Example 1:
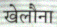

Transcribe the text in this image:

खेलौना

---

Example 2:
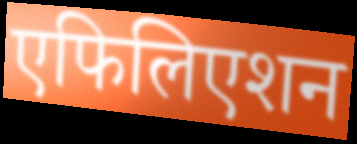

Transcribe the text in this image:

एफिलिएशन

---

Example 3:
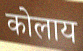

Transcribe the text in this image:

कोलाय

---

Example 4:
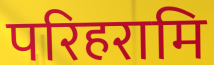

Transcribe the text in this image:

परिहरामि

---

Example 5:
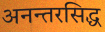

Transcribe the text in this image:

अनन्तरसिद्ध